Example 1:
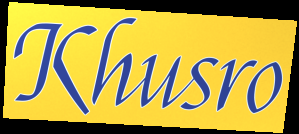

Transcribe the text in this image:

Khusro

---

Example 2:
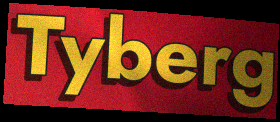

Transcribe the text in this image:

Tyberg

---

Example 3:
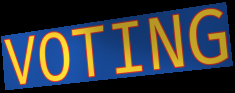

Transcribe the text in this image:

VOTING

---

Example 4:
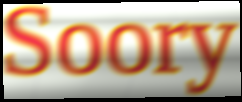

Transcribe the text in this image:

Soory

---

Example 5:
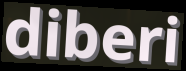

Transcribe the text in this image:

diberi